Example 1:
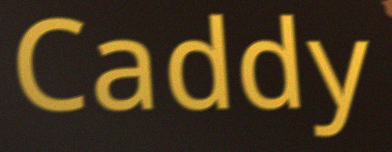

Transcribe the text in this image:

Caddy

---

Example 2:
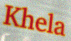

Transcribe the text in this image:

Khela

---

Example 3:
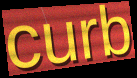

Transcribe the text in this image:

curb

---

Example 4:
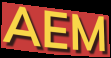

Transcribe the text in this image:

AEM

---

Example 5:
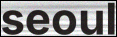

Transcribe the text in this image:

seoul